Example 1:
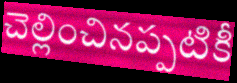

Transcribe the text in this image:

చెల్లించినప్పటికీ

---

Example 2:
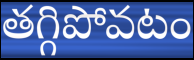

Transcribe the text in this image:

తగ్గిపోవటం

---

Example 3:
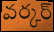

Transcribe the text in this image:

వర్కర్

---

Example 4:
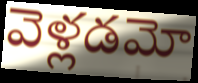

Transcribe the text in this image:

వెళ్లడమో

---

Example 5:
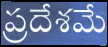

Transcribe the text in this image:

ప్రదేశమే